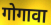
गोगावा